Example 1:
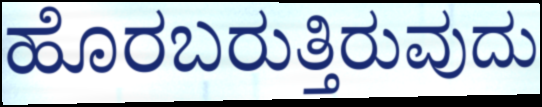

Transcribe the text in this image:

ಹೊರಬರುತ್ತಿರುವುದು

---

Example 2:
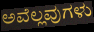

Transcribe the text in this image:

ಅವೆಲ್ಲವುಗಳು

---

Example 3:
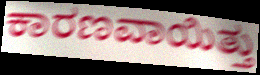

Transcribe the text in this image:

ಕಾರಣವಾಯಿತ್ತು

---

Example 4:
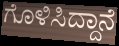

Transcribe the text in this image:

ಗೊಳಿಸಿದ್ದಾನೆ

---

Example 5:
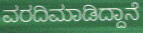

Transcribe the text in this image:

ವರದಿಮಾಡಿದ್ದಾನೆ